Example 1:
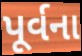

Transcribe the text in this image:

પૂર્વના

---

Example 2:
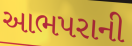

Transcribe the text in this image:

આભપરાની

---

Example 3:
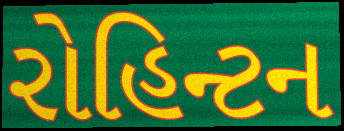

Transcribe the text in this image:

રોહિન્ટન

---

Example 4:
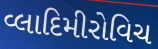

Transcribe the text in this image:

વ્લાદિમીરોવિચ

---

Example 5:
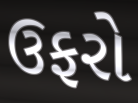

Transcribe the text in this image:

ઉફરો